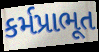
કર્મપ્રાભૂત